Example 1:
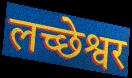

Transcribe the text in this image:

लच्छेश्वर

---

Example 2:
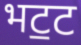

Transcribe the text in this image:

भट॒ट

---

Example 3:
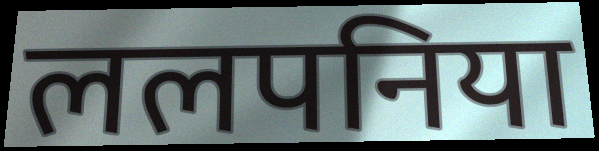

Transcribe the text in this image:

ललपनिया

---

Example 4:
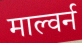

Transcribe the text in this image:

माल्वर्न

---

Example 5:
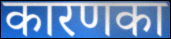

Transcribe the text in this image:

कारणका